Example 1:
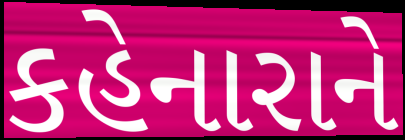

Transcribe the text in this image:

કહેનારાને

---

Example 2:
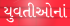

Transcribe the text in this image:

યુવતીઓનાં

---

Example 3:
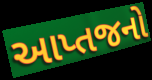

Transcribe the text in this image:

આપ્તજનો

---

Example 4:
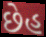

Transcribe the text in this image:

છેહ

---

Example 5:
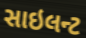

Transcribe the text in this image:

સાઇલન્ટ